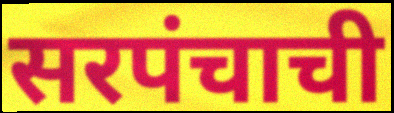
सरपंचाची